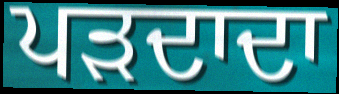
ਪੜਦਾਦਾ